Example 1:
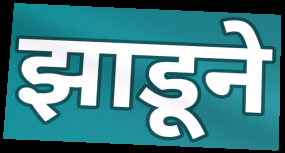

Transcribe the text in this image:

झाडूने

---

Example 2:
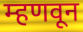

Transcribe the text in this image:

म्हणवून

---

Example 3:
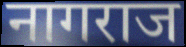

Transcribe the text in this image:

नागराज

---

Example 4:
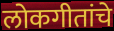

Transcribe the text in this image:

लोकगीतांचे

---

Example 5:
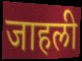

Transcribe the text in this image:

जाहली